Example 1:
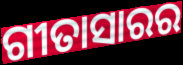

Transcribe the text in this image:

ଗୀତାସାରର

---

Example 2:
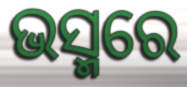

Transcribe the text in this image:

ଭସ୍ମରେ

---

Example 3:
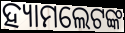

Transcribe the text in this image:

ହ୍ୟାମଲେଟଙ୍କ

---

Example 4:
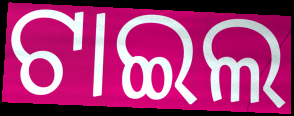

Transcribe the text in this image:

ଟାଇଲ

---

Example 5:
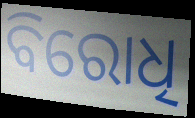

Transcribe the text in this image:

ବିରୋଧି